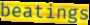
beatings